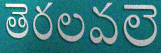
తెరలవలె